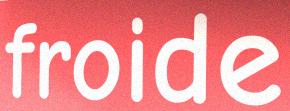
froide